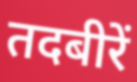
तदबीरें